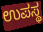
ಉಪಸ್ಥ